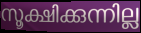
സൂക്ഷിക്കുന്നില്ല